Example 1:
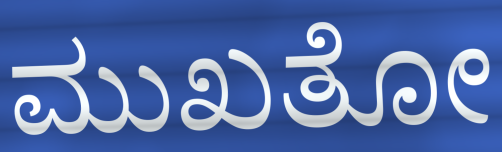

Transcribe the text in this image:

ಮುಖತೋ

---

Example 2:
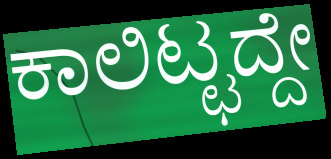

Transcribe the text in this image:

ಕಾಲಿಟ್ಟದ್ದೇ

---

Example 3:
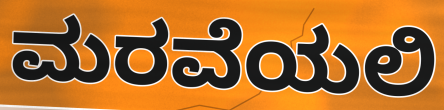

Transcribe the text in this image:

ಮರವೆಯಲಿ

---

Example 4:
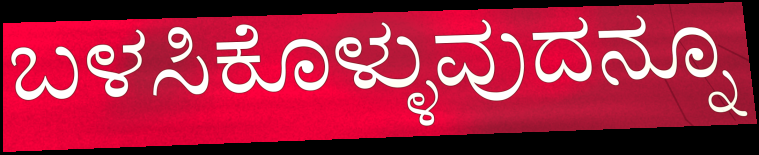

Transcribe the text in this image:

ಬಳಸಿಕೊಳ್ಳುವುದನ್ನೂ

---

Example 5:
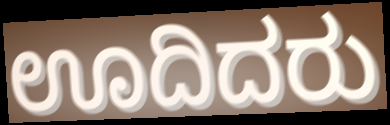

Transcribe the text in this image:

ಊದಿದರು